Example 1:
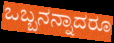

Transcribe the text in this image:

ಒಬ್ಬನನ್ನಾದರೂ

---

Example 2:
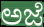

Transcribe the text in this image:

ಅಜೆ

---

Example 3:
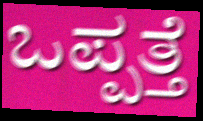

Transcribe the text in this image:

ಒಪ್ಪತ್ತೆ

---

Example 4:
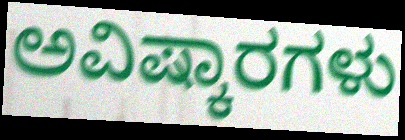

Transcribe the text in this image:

ಅವಿಷ್ಕಾರಗಳು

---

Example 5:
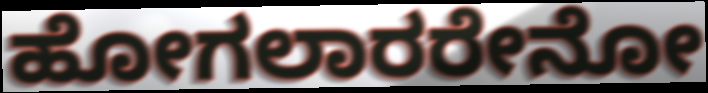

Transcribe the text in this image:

ಹೋಗಲಾರರೇನೋ